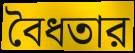
বৈধতার